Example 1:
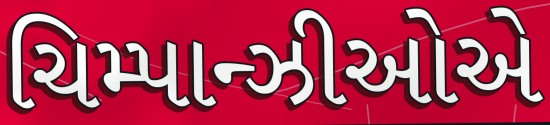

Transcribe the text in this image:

ચિમ્પાન્ઝીઓએ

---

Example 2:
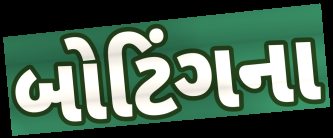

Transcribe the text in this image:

બોટિંગના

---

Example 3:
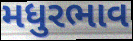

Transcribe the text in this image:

મધુરભાવ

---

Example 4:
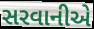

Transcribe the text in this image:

સરવાનીએ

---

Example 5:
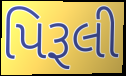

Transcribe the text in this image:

પિરૂલી